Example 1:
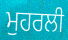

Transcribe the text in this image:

ਮੁਹਰਲੀ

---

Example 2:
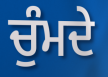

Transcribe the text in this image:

ਚੁੰਮਦੇ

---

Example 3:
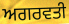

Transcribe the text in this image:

ਅਗਰਵਤੀ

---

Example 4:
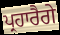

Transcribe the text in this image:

ਪ੍ਰਹਾਰੈਗੇ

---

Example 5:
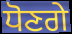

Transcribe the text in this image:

ਧੋਣਗੇ